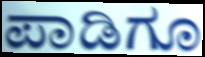
ಪಾಡಿಗೂ